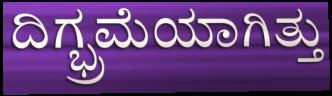
ದಿಗ್ಭ್ರಮೆಯಾಗಿತ್ತು